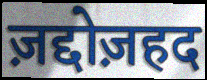
ज़द्दोज़हद